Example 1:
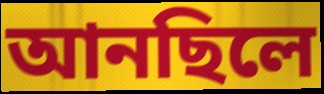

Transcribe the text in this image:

আনছিলে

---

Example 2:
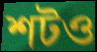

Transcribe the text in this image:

শটও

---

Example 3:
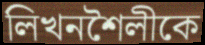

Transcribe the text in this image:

লিখনশৈলীকে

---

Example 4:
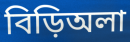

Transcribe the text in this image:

বিড়িঅলা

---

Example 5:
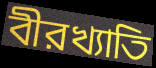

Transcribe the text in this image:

বীরখ্যাতি